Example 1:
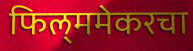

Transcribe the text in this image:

फिल्ममेकरचा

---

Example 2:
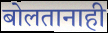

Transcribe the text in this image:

बोलतानाही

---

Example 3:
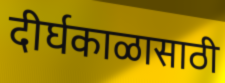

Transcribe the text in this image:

दीर्घकाळासाठी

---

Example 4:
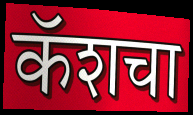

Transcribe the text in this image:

कॅशचा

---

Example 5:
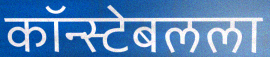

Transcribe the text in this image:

कॉन्स्टेबलला